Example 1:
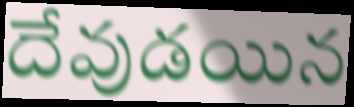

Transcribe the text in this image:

దేవుడయిన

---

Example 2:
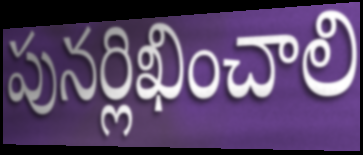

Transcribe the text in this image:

పునర్లిఖించాలి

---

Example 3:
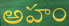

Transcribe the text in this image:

అహం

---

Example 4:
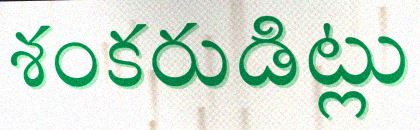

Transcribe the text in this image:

శంకరుడిట్లు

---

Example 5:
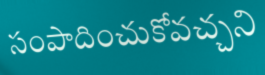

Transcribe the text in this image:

సంపాదించుకోవచ్చని